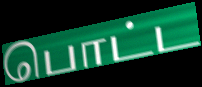
பொட்ட